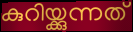
കുറിയ്ക്കുന്നത്